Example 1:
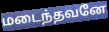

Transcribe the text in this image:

மடைந்தவனே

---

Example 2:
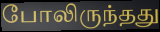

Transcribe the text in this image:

போலிருந்தது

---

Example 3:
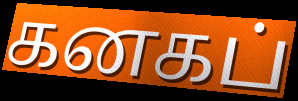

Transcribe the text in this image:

கனகப்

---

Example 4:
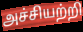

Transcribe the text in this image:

அச்சியற்றி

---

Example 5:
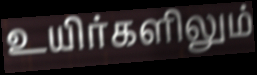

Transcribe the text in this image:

உயிர்களிலும்